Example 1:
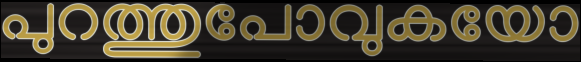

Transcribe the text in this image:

പുറത്തുപോവുകയോ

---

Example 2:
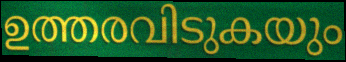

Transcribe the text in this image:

ഉത്തരവിടുകയും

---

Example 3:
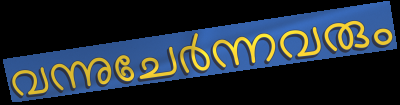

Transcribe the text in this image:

വന്നുചേർന്നവരും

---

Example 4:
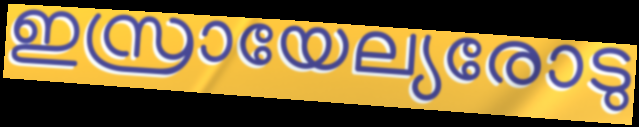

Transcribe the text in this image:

ഇസ്രായേല്യരോടു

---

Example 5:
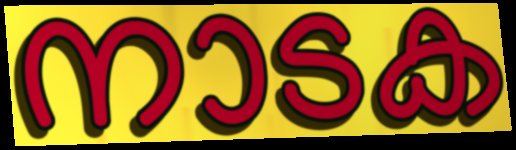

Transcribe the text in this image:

നാടക